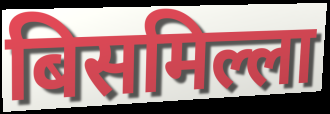
बिसमिल्ला